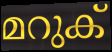
മറുക്